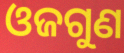
ଓଜଗୁଣ